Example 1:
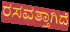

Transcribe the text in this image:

ರಸವತ್ತಾಗಿದೆ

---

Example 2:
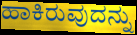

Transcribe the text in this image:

ಹಾಕಿರುವುದನ್ನು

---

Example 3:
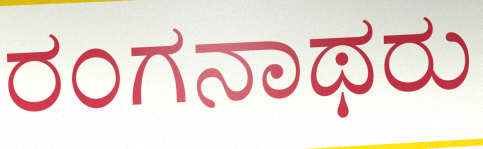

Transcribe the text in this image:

ರಂಗನಾಥರು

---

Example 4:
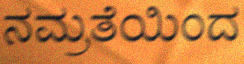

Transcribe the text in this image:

ನಮ್ರತೆಯಿಂದ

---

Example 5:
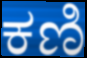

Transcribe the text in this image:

ಕಣಿ